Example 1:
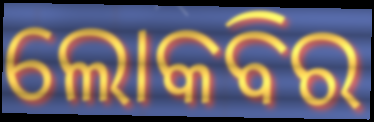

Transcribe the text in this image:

ଲୋକବିର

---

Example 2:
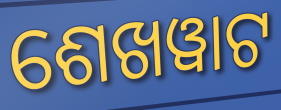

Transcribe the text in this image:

ଶେଖୱାଟ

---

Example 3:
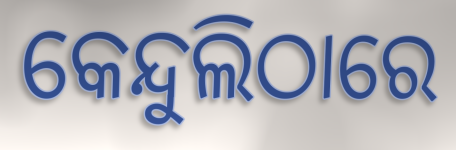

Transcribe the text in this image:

କେନ୍ଦୁଲିଠାରେ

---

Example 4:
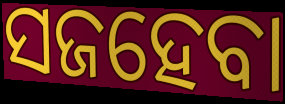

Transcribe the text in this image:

ସଜହେବା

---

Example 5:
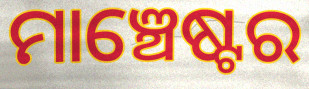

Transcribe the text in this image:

ମାଞ୍ଚେଷ୍ଟର